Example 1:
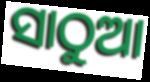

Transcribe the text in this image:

ସାଠୁଆ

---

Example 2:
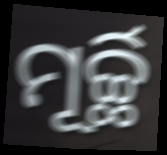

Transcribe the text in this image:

ମୂର୍ଚ୍ଛି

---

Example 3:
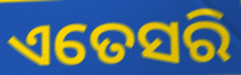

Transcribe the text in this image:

ଏତେସରି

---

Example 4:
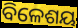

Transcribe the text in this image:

ବିଳେଶୟ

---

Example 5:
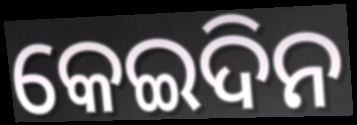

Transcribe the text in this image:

କେଇଦିନ